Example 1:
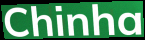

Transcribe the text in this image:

Chinha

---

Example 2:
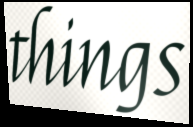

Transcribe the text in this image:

things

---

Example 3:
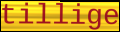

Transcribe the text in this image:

tillige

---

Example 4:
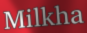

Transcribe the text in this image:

Milkha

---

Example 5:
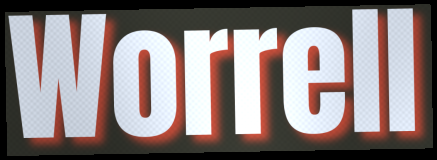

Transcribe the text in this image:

Worrell